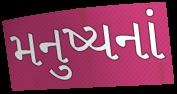
મનુષ્યનાં